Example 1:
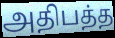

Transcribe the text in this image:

அதிபத்த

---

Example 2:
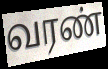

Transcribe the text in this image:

வரண்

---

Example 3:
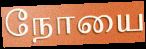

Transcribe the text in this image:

நோயை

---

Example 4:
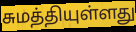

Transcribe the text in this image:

சுமத்தியுள்ளது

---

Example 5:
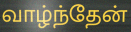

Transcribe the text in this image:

வாழ்ந்தேன்